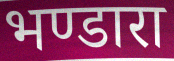
भण्डारा